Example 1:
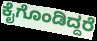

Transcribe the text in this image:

ಕೈಗೊಂಡಿದ್ದರೆ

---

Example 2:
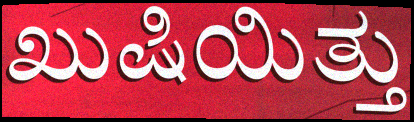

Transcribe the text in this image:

ಖುಷಿಯಿತ್ತು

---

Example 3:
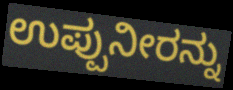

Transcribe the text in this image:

ಉಪ್ಪುನೀರನ್ನು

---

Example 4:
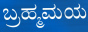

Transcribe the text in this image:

ಬ್ರಹ್ಮಮಯ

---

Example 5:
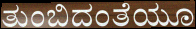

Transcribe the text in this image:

ತುಂಬಿದಂತೆಯೂ